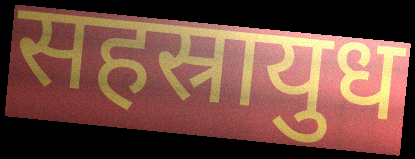
सहस्रायुध